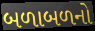
બળાબળનો